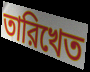
তারিখেত